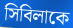
সিবিলাকে